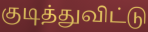
குடித்துவிட்டு